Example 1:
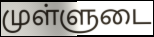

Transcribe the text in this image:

முள்ளுடை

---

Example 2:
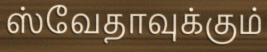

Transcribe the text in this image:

ஸ்வேதாவுக்கும்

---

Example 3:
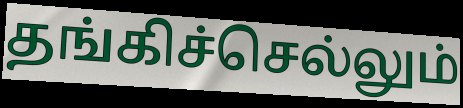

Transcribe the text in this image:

தங்கிச்செல்லும்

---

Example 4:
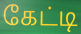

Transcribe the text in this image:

கேட்டி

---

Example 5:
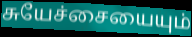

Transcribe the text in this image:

சுயேச்சையையும்